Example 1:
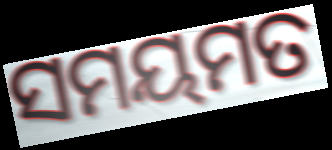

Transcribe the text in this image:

ସମୟମତ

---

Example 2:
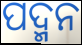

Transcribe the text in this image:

ପଦ୍ମନ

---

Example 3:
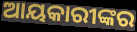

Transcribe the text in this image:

ଆୟକାରୀଙ୍କର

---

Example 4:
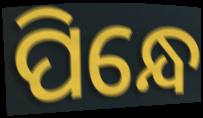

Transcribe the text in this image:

ପିନ୍ଧେ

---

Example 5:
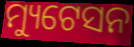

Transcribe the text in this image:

ମ୍ୟୁଟେସନ